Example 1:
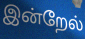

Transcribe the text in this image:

இன்றேல்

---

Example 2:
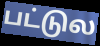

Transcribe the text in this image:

பட்டுல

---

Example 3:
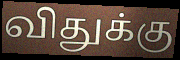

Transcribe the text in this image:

விதுக்கு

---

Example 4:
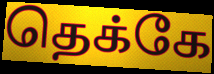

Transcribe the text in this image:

தெக்கே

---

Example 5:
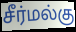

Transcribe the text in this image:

சீர்மல்கு